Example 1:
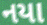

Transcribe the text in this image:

નયા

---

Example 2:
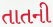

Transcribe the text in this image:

તાતની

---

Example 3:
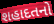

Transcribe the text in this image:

શહાદતનો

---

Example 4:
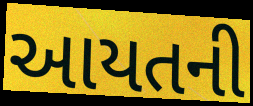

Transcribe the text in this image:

આયતની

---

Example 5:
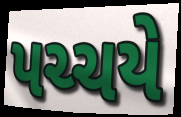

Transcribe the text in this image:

પચ્ચયે